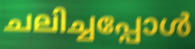
ചലിച്ചപ്പോൾ